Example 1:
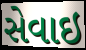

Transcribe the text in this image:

સેવાઇ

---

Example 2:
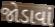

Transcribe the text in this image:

જોડાવાં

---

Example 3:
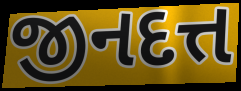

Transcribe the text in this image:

જીનદત્ત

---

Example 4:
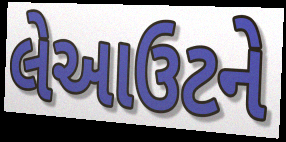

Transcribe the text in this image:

લેઆઉટને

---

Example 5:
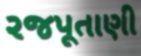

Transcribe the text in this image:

રજપૂતાણી